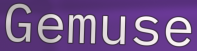
Gemuse